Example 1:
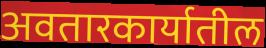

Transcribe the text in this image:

अवतारकार्यातील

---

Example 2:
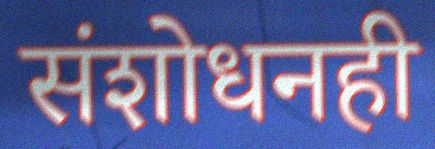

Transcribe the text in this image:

संशोधनही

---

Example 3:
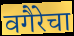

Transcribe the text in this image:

वगैरेचा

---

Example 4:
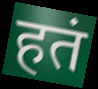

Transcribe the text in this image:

हतं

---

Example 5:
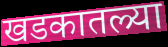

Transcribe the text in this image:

खडकातल्या